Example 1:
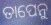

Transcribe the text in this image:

ତାପେନୁ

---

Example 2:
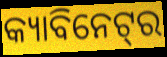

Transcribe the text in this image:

କ୍ୟାବିନେଟ୍‌ର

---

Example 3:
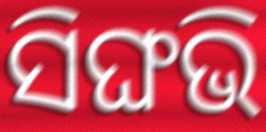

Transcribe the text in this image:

ସିଙ୍ଘଭି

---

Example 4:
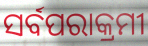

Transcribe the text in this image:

ସର୍ବପରାକ୍ରମୀ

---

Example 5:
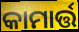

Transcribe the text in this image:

କାମାର୍ତ୍ତ